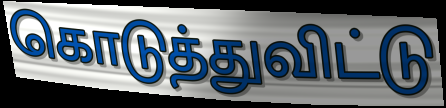
கொடுத்துவிட்டு